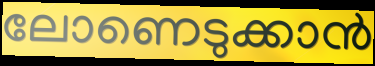
ലോണെടുക്കാൻ